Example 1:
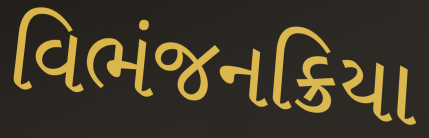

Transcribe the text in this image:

વિભંજનક્રિયા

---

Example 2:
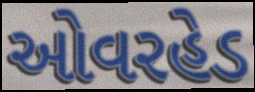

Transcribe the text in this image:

ઓવરહેડ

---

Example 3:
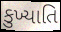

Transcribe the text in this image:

કુખ્યાતિ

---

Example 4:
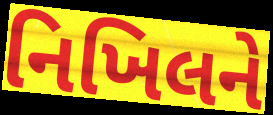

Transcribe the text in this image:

નિખિલને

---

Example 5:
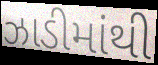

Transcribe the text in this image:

ઝાડીમાંથી